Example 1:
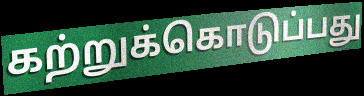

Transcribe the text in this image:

கற்றுக்கொடுப்பது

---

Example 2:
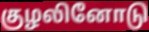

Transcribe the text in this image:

குழலினோடு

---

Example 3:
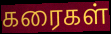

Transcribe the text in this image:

கரைகள்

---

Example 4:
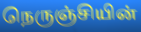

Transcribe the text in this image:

நெருஞ்சியின்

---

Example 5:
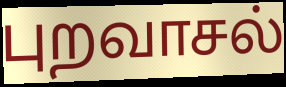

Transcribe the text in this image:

புறவாசல்